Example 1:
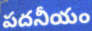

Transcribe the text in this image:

పదనీయం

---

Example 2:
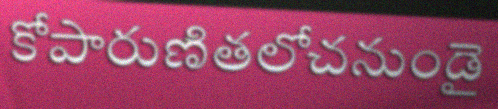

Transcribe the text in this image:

కోపారుణితలోచనుండై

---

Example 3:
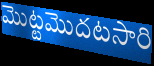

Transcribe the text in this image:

మొట్టమొదటసారి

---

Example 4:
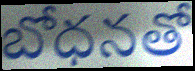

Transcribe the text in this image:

బోధనతో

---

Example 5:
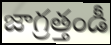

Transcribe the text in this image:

జాగ్రత్తండీ